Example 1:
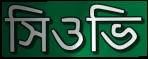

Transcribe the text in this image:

সিওভি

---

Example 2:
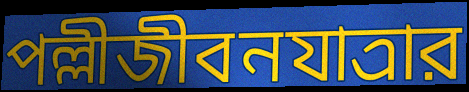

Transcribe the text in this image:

পল্লীজীবনযাত্রার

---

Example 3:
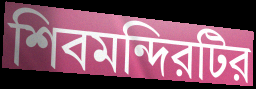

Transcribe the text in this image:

শিবমন্দিরটির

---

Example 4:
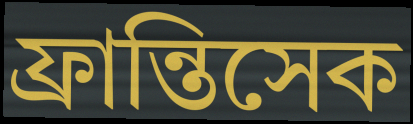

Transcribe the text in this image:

ফ্রান্তিসেক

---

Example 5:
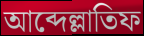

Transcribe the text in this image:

আব্দেল্লাতিফ